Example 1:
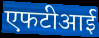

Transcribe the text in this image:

एफटीआई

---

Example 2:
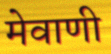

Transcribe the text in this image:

मेवाणी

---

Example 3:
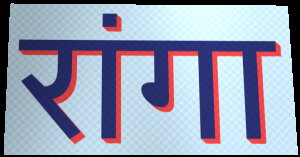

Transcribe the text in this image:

रांगा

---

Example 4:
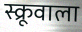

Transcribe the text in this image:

स्क्रूवाला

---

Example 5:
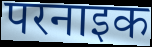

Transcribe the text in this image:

परनाइक